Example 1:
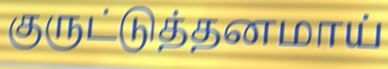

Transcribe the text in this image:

குருட்டுத்தனமாய்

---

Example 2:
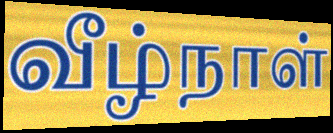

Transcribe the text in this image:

வீழ்நாள்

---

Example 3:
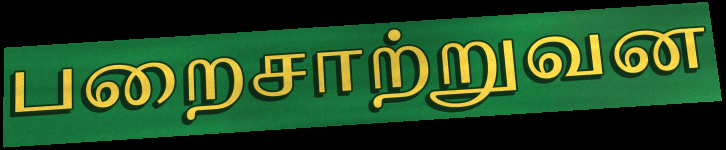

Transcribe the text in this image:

பறைசாற்றுவன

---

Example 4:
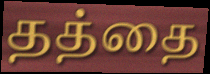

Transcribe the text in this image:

தத்தை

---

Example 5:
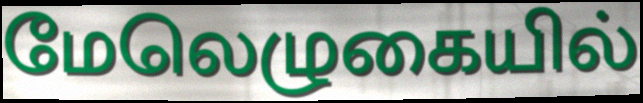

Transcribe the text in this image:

மேலெழுகையில்